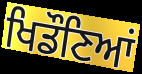
ਖਿਡੌਣਿਆਂ